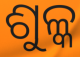
ଶୁଳ୍କ